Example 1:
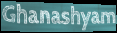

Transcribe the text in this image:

Ghanashyam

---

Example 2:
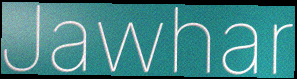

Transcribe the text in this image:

Jawhar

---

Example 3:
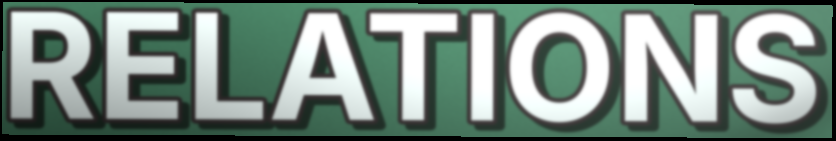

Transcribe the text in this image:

RELATIONS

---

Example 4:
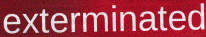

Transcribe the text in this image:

exterminated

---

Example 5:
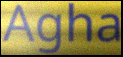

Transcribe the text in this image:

Agha